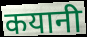
कयानी